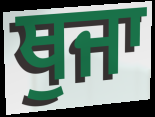
ਥੁਜਾ